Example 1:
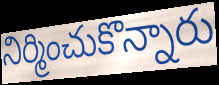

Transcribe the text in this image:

నిర్మించుకొన్నారు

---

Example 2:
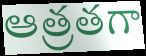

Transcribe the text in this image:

ఆత్రతగా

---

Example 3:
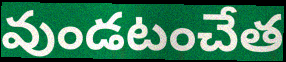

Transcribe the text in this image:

వుండటంచేత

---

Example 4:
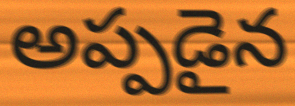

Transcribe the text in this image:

అప్పడైన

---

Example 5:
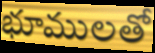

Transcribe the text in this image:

భూములతో